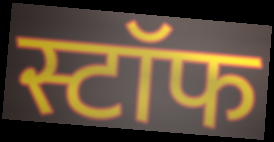
स्‍टॉफ